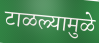
टाळल्यामुळे